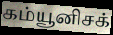
கம்யூனிசக்